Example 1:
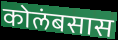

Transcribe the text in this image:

कोलंबसास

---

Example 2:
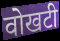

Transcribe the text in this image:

वोखटी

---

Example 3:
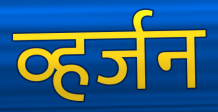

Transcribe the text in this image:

व्हर्जन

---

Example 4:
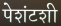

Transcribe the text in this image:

पेशंटशी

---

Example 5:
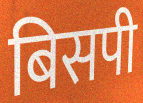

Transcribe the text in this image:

बिसपी